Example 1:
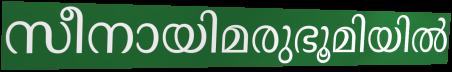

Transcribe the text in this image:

സീനായിമരുഭൂമിയിൽ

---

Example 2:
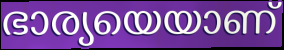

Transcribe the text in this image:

ഭാര്യയെയാണ്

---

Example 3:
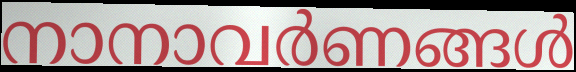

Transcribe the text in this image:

നാനാവർണങ്ങൾ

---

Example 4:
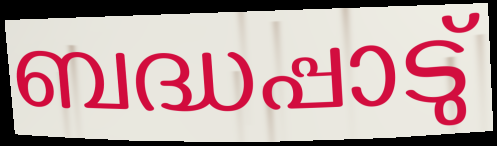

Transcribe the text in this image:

ബദ്ധപ്പാടു്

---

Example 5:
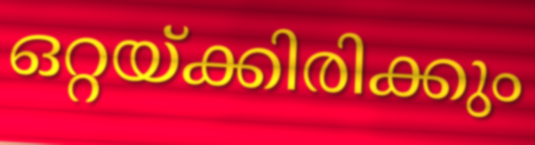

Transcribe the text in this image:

ഒറ്റയ്ക്കിരിക്കും